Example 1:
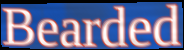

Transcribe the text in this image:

Bearded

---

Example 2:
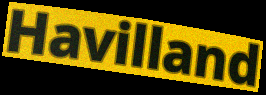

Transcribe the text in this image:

Havilland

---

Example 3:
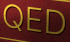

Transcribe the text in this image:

QED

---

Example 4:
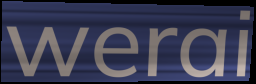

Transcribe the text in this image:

werai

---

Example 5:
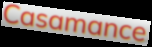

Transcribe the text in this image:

Casamance